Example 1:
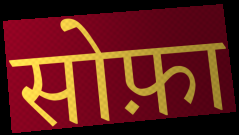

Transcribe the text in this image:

सोफ़ा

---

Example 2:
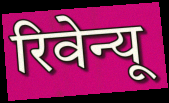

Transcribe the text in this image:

रिवेन्यू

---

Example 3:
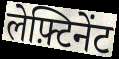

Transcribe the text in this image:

लेफ़्टिनेंट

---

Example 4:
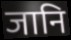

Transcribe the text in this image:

जानि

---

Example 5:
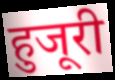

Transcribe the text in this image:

हुजूरी